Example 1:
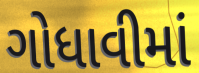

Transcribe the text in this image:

ગોધાવીમાં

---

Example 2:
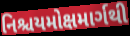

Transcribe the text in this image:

નિશ્ચયમોક્ષમાર્ગથી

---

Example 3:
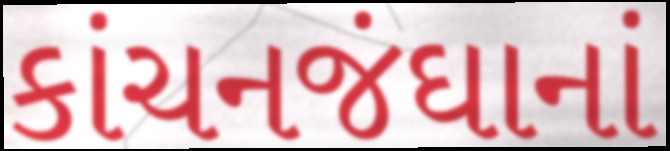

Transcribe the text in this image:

કાંચનજંઘાનાં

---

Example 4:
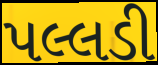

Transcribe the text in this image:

પલ્લડી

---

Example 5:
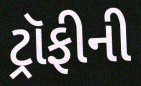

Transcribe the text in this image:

ટ્રૉફીની